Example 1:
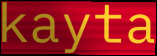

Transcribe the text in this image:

kayta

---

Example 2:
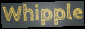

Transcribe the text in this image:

Whipple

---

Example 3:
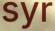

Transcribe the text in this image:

syr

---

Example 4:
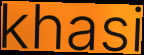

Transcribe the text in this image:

khasi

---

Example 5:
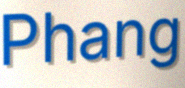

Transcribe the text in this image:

Phang